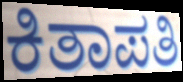
ಕಿತಾಪತಿ